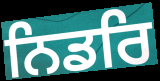
ਨਿਡਰਿ